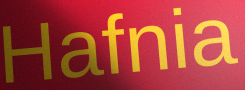
Hafnia